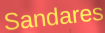
Sandares